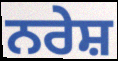
ਨਰੇਸ਼